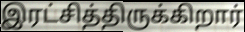
இரட்சித்திருக்கிறார்